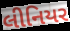
લીનિયર